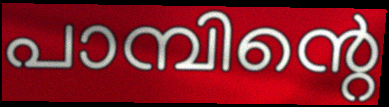
പാമ്പിന്റെ